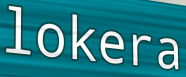
lokera